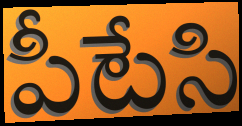
పీటేసి